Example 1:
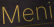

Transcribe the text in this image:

Meni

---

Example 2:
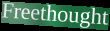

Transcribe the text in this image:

Freethought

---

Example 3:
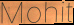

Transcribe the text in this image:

Mohit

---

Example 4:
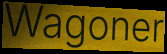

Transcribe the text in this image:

Wagoner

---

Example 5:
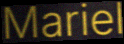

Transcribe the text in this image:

Mariel